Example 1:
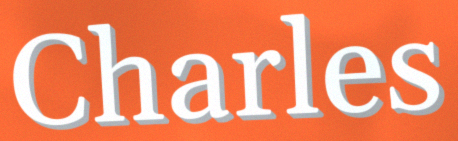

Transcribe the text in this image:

Charles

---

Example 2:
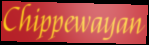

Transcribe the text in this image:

Chippewayan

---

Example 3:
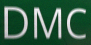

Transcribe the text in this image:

DMC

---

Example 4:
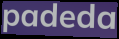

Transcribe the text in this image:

padeda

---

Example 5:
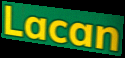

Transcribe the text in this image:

Lacan